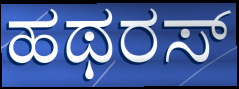
ಹಥರಸ್